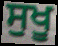
ਸੁਖੂ